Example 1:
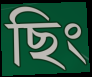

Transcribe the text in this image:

ছিং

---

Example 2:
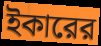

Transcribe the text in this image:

ইকারের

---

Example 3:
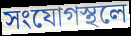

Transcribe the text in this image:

সংযোগস্থলে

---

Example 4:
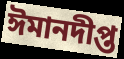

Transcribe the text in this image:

ঈমানদীপ্ত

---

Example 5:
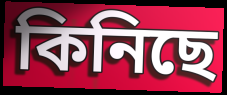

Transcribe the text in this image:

কিনিছে